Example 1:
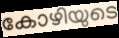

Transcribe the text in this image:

കോഴിയുടെ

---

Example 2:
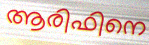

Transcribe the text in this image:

ആരിഫിനെ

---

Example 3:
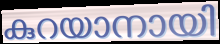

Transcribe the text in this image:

കുറയാനായി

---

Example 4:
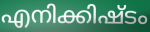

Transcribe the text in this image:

എനിക്കിഷ്ടം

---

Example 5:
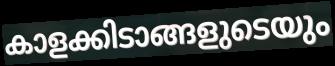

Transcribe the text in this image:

കാളക്കിടാങ്ങളുടെയും